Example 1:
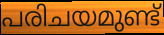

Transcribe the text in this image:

പരിചയമുണ്ട്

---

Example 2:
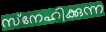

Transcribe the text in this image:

സ്‌നേഹിക്കുന്ന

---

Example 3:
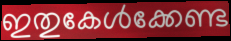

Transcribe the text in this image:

ഇതുകേൾക്കേണ്ട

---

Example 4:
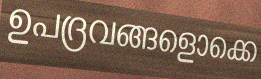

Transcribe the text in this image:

ഉപദ്രവങ്ങളൊക്കെ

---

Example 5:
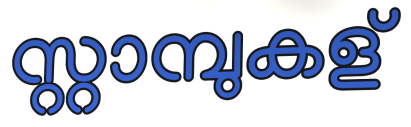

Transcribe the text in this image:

സ്റ്റാമ്പുകള്